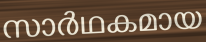
സാർഥകമായ